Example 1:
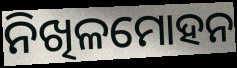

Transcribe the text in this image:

ନିଖିଳମୋହନ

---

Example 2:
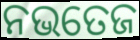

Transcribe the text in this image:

ନଭତେଜ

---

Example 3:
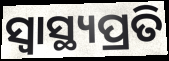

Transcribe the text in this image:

ସ୍ବାସ୍ଥ୍ୟପ୍ରତି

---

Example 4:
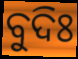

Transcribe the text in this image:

ବୁଦିଃ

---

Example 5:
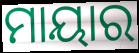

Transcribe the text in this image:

ମାୟାର